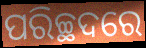
ପରିଚ୍ଛଦରେ